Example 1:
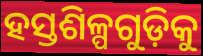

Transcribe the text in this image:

ହସ୍ତଶିଳ୍ପଗୁଡ଼ିକୁ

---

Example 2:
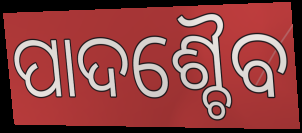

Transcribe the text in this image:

ପାଦଶ୍ଚୈବ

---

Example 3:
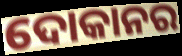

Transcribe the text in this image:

ଦୋକାନର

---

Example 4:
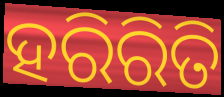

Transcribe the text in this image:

ହରିରିତି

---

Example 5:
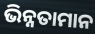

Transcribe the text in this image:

ଭିନ୍ନତାମାନ